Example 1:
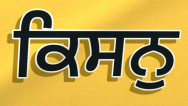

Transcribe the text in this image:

ਕਿਸਨੁ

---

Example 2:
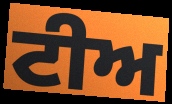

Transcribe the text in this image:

ਟੀਅ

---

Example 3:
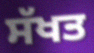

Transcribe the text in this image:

ਸੱਖਤ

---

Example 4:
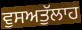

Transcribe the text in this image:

ਵੁਸਅਤੁੱਲਾਹ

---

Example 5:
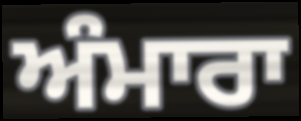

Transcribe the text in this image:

ਅੰਮਾਰਾ